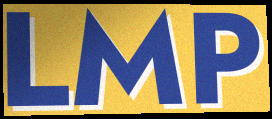
LMP